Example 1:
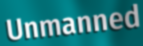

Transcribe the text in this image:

Unmanned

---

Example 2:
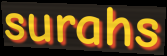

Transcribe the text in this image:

surahs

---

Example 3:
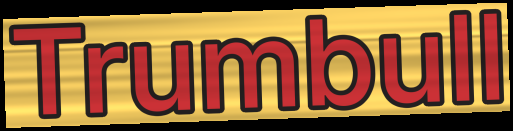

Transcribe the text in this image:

Trumbull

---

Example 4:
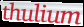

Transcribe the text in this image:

thulium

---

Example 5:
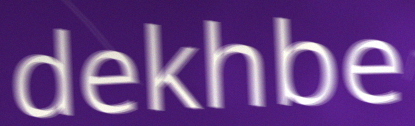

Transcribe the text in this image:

dekhbe